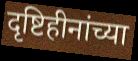
दृष्टिहीनांच्या